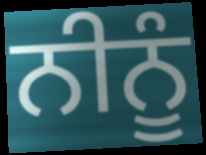
ਨੀਨੂੰ